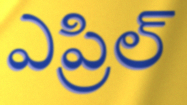
ఎప్రిల్